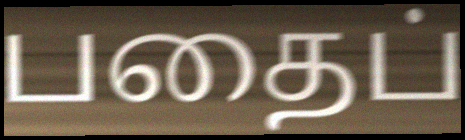
பதைப்